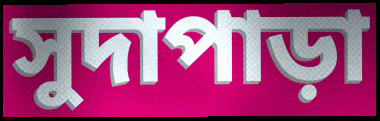
সুদাপাড়া